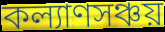
কল্যাণসঞ্চয়